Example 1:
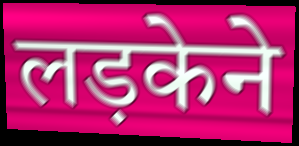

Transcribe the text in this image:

लड़केने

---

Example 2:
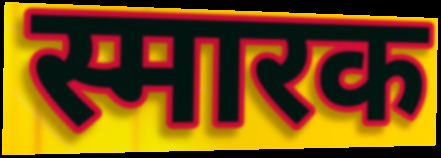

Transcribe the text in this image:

स्मारक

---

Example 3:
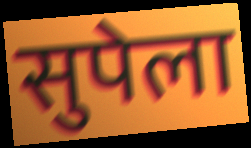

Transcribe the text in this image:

सुपेला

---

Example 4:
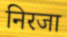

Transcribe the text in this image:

निरजा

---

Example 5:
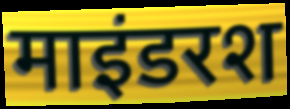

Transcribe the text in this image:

माइंडरश